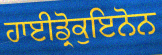
ਹਾਈਡ੍ਰੋਕੁਇਨੋਨ